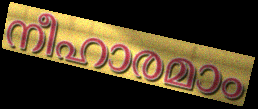
നീഹാരമാം